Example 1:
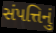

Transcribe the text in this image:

સંપત્તિનું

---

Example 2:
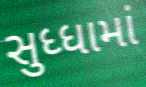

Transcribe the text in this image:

સુધ્ધામાં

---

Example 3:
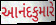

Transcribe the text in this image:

આનંદકુમારે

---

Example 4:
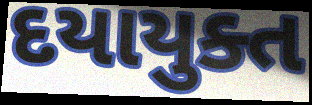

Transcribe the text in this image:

દયાયુક્ત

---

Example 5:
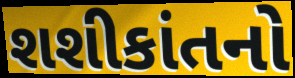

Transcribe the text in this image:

શશીકાંતનો